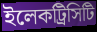
ইলেকট্রিসিটি